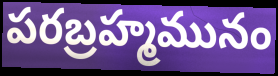
పరబ్రహ్మమునం